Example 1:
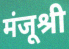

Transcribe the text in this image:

मंजूश्री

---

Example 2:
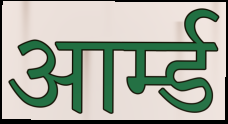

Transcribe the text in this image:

आर्म्ड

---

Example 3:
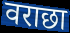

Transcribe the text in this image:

वराछा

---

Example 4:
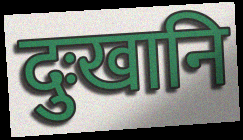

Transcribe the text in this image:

दुःखानि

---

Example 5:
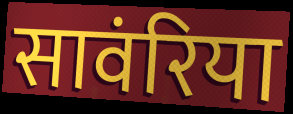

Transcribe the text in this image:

सावंरिया